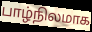
பாழ்நிலமாக